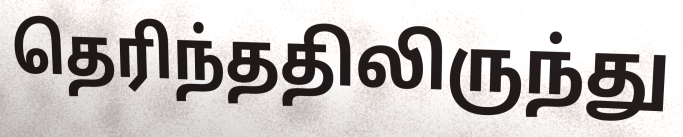
தெரிந்ததிலிருந்து